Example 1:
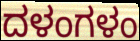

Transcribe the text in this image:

ದಳಂಗಳಂ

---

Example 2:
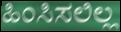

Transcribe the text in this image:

ಹಿಂಸಿಸಲಿಲ್ಲ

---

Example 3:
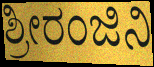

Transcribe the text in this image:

ಶ್ರೀರಂಜಿನಿ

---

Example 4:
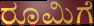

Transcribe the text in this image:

ರೂಮಿಗೆ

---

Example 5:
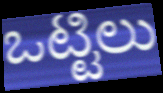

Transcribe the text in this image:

ಒಟ್ಟಿಲು